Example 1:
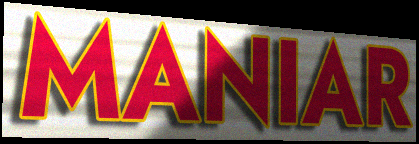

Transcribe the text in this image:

MANIAR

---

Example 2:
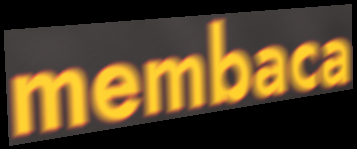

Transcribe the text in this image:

membaca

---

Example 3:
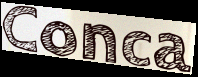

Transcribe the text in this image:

Conca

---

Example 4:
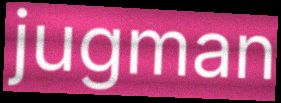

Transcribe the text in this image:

jugman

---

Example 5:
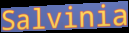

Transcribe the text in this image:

Salvinia